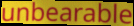
unbearable